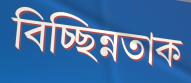
বিচ্ছিন্নতাক